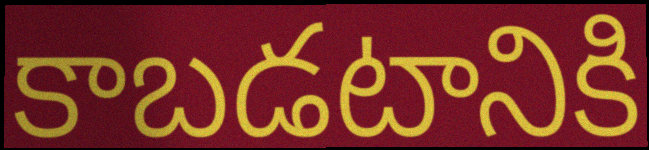
కాబడటానికి